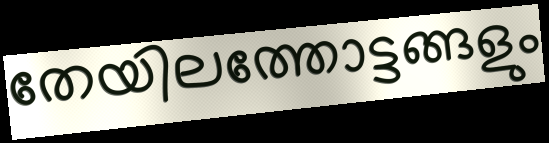
തേയിലത്തോട്ടങ്ങളും